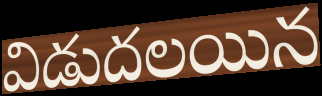
విడుదలయిన